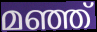
മഞ്ഞ്